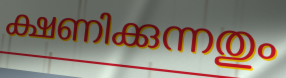
ക്ഷണിക്കുന്നതും